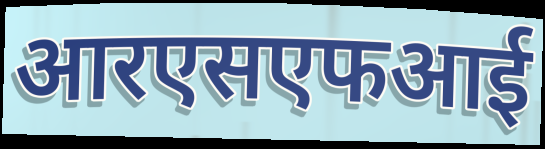
आरएसएफआई